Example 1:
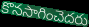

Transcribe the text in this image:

కొనసాగించెదరు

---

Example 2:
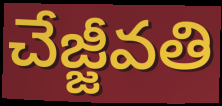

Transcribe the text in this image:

చేజ్జీవతి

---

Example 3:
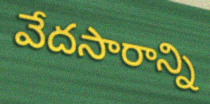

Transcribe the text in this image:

వేదసారాన్ని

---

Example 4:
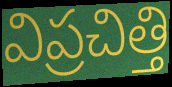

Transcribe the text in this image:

విప్రచిత్తి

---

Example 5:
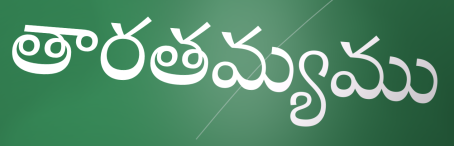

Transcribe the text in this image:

తారతమ్యము